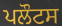
ਪਲੌਟਸ